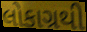
લોકાગ્રથી